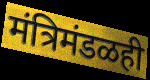
मंत्रिमंडळही